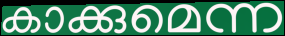
കാക്കുമെന്ന